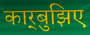
कार्बुझिए